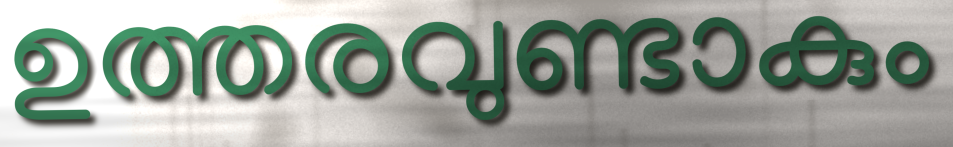
ഉത്തരവുണ്ടാകും